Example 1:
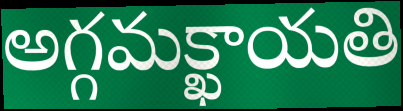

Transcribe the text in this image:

అగ్గమక్ఖాయతి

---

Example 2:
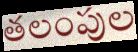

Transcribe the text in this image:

తలంపుల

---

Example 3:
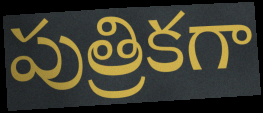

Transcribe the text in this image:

పుత్రికగా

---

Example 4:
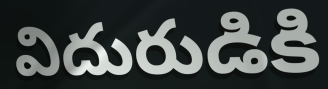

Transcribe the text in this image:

విదురుడికి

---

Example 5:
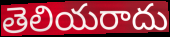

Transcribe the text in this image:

తెలియరాదు